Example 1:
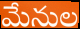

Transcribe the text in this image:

మేనుల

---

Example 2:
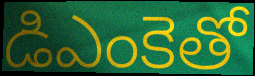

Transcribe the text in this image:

డిఎంకెతో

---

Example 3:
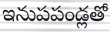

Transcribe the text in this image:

ఇనుపపండ్లతో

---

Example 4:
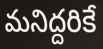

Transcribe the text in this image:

మనిద్దరికే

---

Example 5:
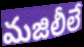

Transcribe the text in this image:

మజిలీలే